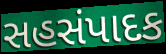
સહસંપાદક